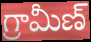
గ్రామీణ్